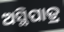
ଅସ୍ଥିପାତ୍ର